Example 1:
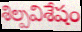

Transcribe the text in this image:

శిల్పవిశేషం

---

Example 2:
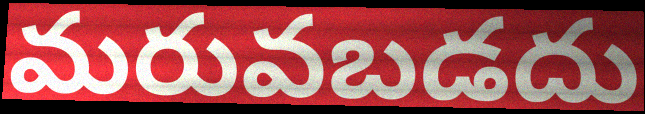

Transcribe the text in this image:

మరువబడదు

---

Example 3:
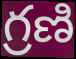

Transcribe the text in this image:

గ్రణి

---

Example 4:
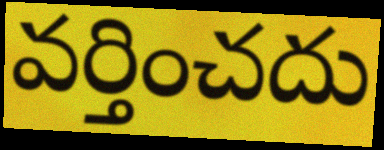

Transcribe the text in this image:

వర్తించదు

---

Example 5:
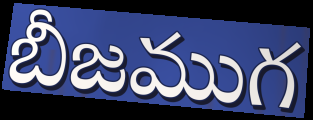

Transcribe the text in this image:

బీజముగ